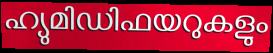
ഹ്യുമിഡിഫയറുകളും